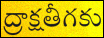
ద్రాక్షతీగకు